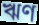
ঋণ